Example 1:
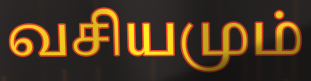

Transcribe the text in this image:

வசியமும்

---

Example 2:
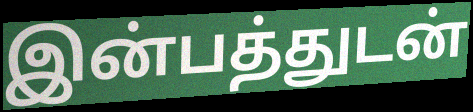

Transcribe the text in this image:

இன்பத்துடன்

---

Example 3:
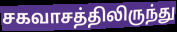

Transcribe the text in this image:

சகவாசத்திலிருந்து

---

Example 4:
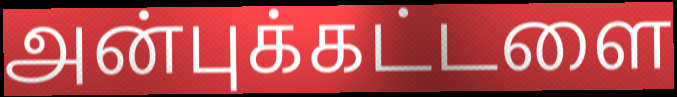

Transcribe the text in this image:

அன்புக்கட்டளை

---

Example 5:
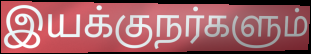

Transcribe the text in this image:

இயக்குநர்களும்